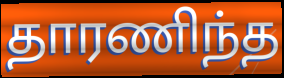
தாரணிந்த